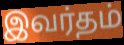
இவர்தம்